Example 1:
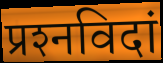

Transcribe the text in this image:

प्रश्नविदां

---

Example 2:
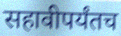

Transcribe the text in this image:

सहावीपर्यंतच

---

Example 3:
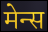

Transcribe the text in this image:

मेन्स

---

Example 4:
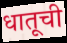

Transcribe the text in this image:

धातूची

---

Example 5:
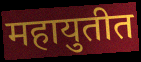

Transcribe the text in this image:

महायुतीत